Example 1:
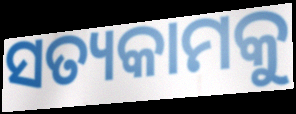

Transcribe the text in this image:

ସତ୍ୟକାମକୁ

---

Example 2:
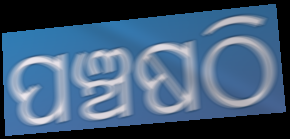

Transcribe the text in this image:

ପଞ୍ଚଷଠି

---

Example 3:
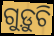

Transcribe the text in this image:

ଗୁଡ଼ୁଚି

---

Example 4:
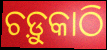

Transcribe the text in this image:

ଚଡ଼ୁକାଠି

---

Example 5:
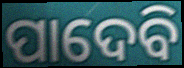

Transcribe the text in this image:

ପାଦେବି